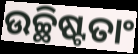
ଉଚ୍ଛିଷ୍ଟତାଂ